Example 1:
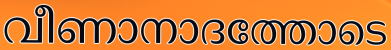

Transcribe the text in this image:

വീണാനാദത്തോടെ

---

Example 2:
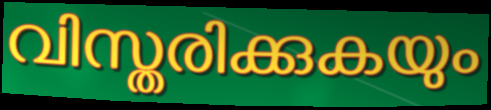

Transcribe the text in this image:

വിസ്തരിക്കുകയും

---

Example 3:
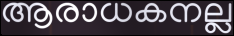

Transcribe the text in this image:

ആരാധകനല്ല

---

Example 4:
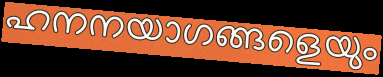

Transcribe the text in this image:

ഹനനയാഗങ്ങളെയും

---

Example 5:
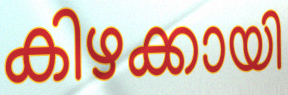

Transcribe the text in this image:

കിഴക്കായി